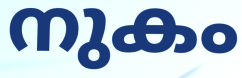
നുകം